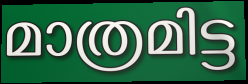
മാത്രമിട്ട